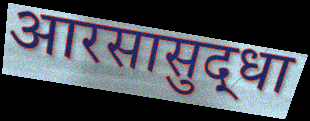
आरसासुद्धा